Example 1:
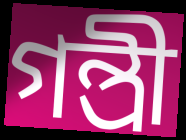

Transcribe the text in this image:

গন্ত্রী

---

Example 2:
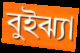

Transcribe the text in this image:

বুইঝ্যা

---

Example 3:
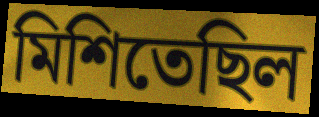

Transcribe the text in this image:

মিশিতেছিল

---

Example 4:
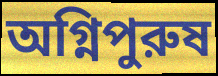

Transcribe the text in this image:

অগ্নিপুরুষ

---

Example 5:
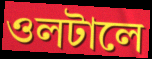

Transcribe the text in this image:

ওলটালে